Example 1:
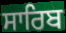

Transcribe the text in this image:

ਸਾਰਿਬ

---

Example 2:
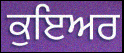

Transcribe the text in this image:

ਕੁਇਅਰ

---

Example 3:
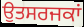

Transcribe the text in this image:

ਉਤਸਰਜਕਾਂ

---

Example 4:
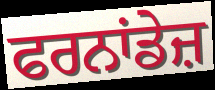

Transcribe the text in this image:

ਫਰਨਾਂਡੇਜ਼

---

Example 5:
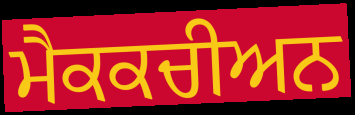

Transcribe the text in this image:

ਮੈਕਕਚੀਅਨ